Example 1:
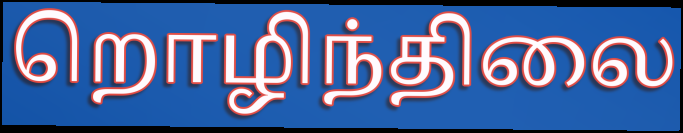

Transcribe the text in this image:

றொழிந்திலை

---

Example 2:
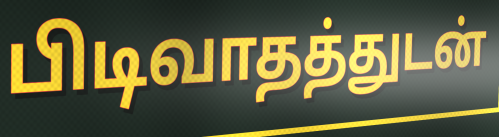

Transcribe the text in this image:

பிடிவாதத்துடன்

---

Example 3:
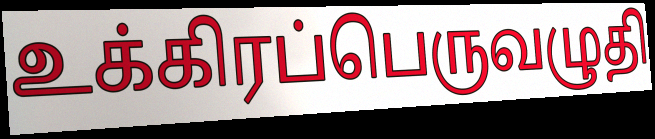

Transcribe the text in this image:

உக்கிரப்பெருவழுதி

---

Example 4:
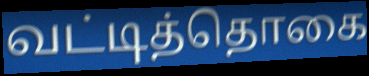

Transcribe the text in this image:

வட்டித்தொகை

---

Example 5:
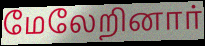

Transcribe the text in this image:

மேலேறினார்